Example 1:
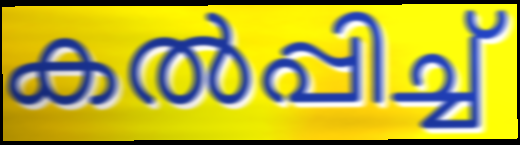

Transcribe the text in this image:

കൽപ്പിച്ച്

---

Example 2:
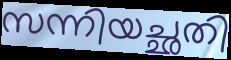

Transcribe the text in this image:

സന്നിയച്ഛതി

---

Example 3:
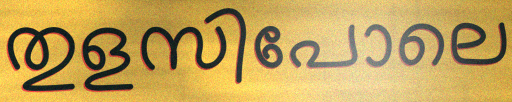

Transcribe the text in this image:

തുളസിപോലെ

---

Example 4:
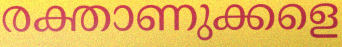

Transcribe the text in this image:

രക്താണുക്കളെ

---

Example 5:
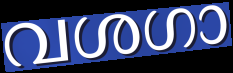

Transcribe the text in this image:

വശഗാ